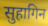
सुहागिन